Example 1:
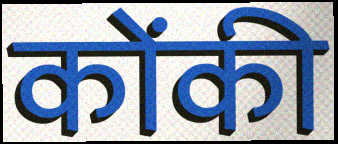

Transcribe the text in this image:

कोंकी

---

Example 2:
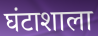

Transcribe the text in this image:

घंटाशाला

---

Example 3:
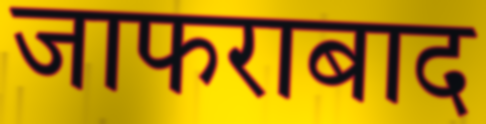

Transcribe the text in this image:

जाफराबाद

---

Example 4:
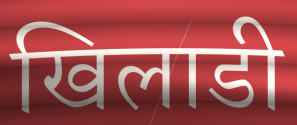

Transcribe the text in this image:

खिलाडी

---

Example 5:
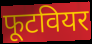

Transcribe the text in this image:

फूटवियर